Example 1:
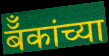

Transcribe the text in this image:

बॅँकांच्या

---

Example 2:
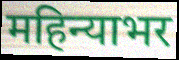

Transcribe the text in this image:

महिन्याभर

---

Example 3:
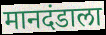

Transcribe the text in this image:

मानदंडाला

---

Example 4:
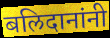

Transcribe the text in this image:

बलिदानांनी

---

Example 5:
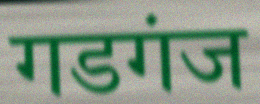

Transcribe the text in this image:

गडगंज